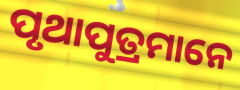
ପୃଥାପୁତ୍ରମାନେ